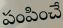
పంపించే